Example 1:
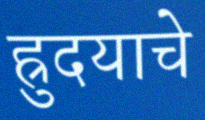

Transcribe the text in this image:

ह्रुदयाचे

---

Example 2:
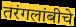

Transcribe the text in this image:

तरंगलांबीचे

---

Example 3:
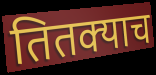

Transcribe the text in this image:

तितक्याच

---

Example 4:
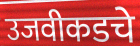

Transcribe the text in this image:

उजवीकडचे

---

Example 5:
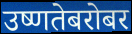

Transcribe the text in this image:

उष्णतेबरोबर